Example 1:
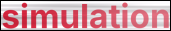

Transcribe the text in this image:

simulation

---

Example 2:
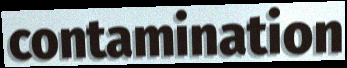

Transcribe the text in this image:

contamination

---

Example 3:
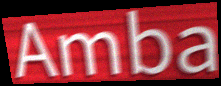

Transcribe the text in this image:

Amba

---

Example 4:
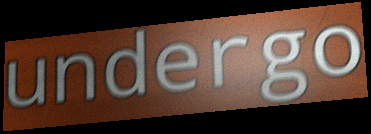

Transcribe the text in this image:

undergo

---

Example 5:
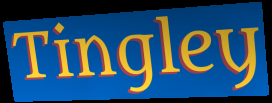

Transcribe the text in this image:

Tingley